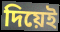
দিয়েই